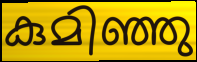
കുമിഞ്ഞു